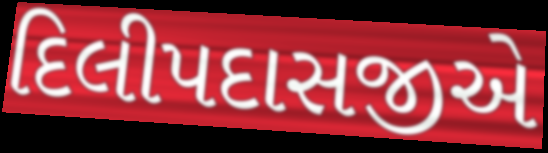
દિલીપદાસજીએ